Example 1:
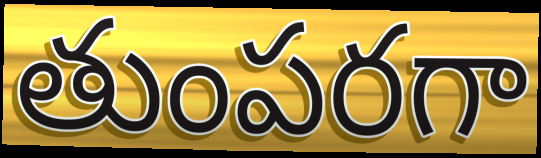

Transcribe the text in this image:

తుంపరగా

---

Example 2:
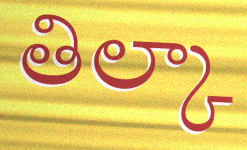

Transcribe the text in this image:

తిల్కా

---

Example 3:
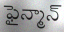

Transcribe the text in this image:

ఫైన్మాన్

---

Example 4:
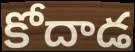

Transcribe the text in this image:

కోదాడ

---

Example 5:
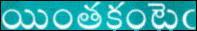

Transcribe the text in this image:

యింతకంటెఁ